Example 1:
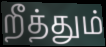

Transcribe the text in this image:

றீத்தும்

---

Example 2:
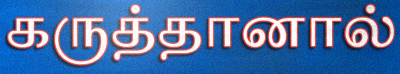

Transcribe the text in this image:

கருத்தானால்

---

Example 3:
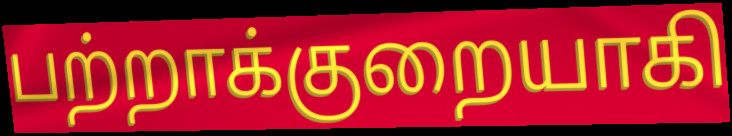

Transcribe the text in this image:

பற்றாக்குறையாகி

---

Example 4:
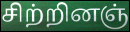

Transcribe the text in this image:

சிற்றினஞ்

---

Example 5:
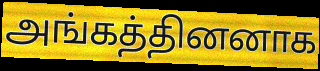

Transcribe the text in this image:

அங்கத்தினனாக